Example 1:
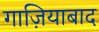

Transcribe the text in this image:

गाज़ियाबाद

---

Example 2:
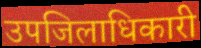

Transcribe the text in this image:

उपजिलाधिकारी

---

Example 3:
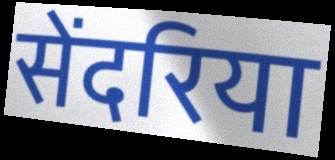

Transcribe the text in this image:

सेंदरिया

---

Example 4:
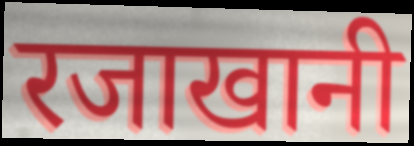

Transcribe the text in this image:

रजाखानी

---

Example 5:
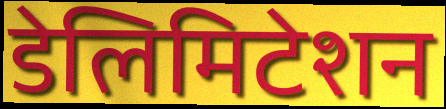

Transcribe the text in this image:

डेलिमिटेशन